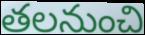
తలనుంచి